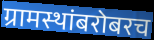
ग्रामस्थांबरोबरच